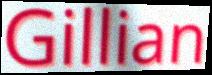
Gillian